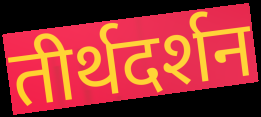
तीर्थदर्शन